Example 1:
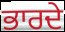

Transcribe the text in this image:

ਭਾਰਦੇ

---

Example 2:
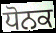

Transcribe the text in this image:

ਧੋਨਕ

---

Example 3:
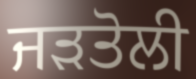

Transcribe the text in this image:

ਜੜਤੋਲੀ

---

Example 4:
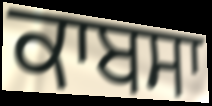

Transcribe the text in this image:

ਕਾਬਸਾ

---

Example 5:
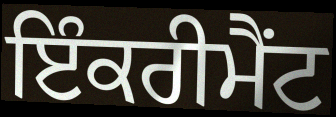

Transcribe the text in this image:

ਇੰਕਰੀਮੈਂਟ